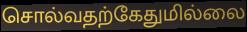
சொல்வதற்கேதுமில்லை